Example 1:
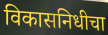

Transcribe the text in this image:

विकासनिधीचा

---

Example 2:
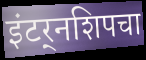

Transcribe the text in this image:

इंटर्नशिपचा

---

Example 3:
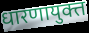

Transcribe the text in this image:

धारणायुक्त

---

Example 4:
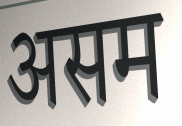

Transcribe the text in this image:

असम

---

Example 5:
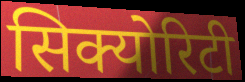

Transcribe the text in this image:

सिक्योरिटी